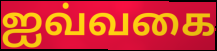
ஐவ்வகை